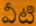
వీటి